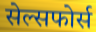
सेल्सफोर्स